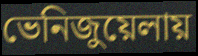
ভেনিজুয়েলায়